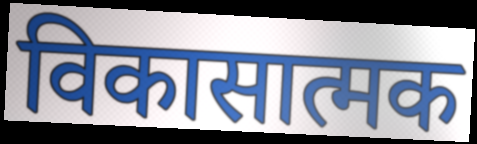
विकासात्मक